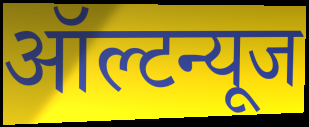
ऑल्टन्यूज